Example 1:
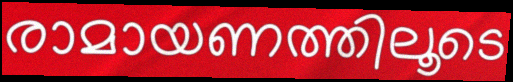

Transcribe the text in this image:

രാമായണത്തിലൂടെ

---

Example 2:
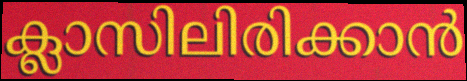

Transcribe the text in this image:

ക്ലാസിലിരിക്കാൻ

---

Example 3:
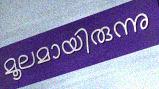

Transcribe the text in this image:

മൂലമായിരുന്നു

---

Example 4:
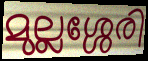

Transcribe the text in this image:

മുല്ലശ്ശേരി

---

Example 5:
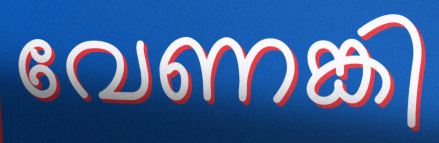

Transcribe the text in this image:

വേണങ്കി